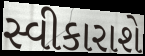
સ્વીકારાશે